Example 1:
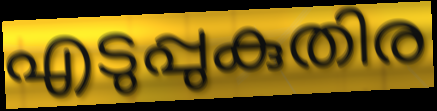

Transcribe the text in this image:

എടുപ്പുകുതിര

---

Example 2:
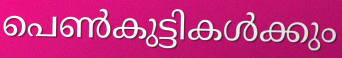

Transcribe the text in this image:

പെൺകുട്ടികൾക്കും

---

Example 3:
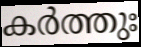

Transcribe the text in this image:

കർത്തുഃ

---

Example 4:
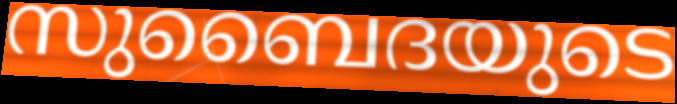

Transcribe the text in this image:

സുബൈദയുടെ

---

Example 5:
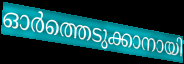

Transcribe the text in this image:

ഓർത്തെടുക്കാനായി